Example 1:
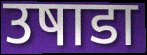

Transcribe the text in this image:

उषाडा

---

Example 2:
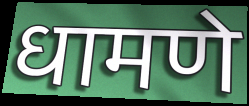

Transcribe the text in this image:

धामणे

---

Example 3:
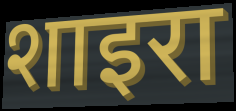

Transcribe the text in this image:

शाइरा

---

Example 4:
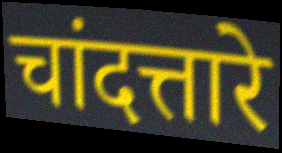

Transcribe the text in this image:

चांदत्तारे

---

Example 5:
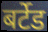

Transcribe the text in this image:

बर्टेड